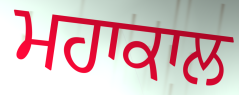
ਮਹਾਕਾਲ